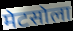
मेटसोला